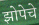
झोपेचे